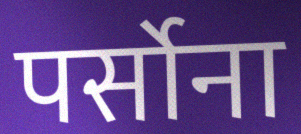
पर्सोना